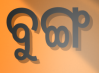
ବୁଙ୍ଗ